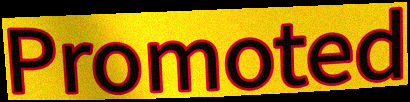
Promoted